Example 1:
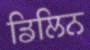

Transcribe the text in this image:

ਡਿਲਿਨ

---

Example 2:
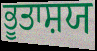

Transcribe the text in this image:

ਭੂਤਾਸ਼ਯ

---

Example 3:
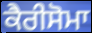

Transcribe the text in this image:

ਕੈਰੀਸੋਮਾ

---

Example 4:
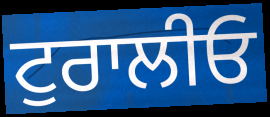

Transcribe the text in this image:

ਟੁਰਾਲੀਓ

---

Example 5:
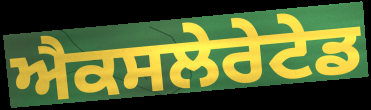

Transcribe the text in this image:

ਐਕਸਲੇਰੇਟੇਡ